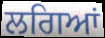
ਲਗਿਆਂ